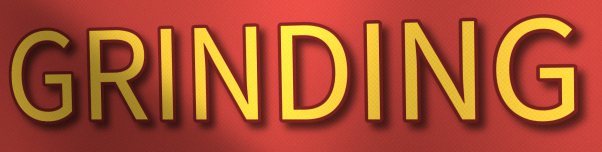
GRINDING